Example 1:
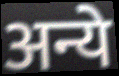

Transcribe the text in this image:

अन्ये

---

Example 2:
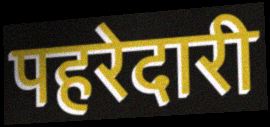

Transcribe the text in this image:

पहरेदारी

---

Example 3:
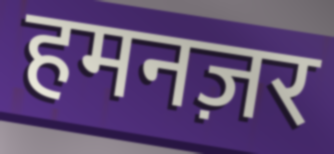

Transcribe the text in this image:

हमनज़र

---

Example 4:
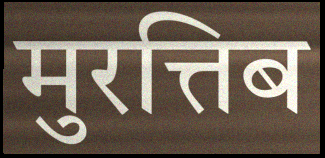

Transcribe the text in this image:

मुरत्तिब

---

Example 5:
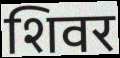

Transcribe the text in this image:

शिवर